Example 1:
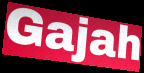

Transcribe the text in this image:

Gajah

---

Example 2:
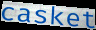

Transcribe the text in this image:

casket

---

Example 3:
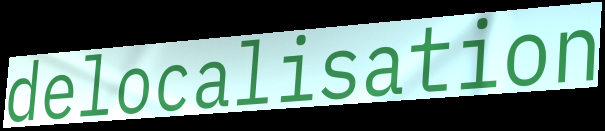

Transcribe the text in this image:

delocalisation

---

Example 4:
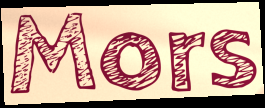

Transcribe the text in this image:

Mors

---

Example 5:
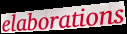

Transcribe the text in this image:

elaborations